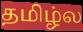
தமிழ்ல